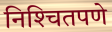
निश्‍चितपणे